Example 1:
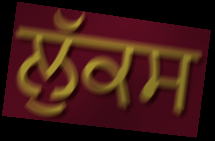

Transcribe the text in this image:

ਲੁੱਕਸ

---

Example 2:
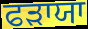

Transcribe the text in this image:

ਫੜਾਯਾ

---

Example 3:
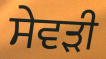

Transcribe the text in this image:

ਸੇਵੜੀ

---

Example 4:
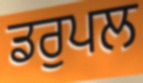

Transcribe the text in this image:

ਡਰੁਪਲ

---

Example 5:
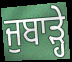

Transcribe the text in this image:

ਜੁਬਾੜ੍ਹੇ